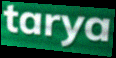
tarya